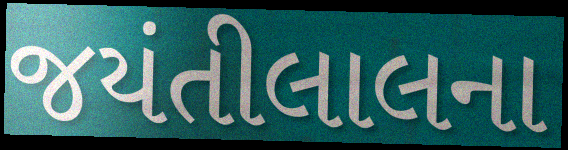
જયંતીલાલના